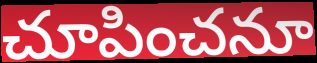
చూపించనూ